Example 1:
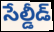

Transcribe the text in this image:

సేల్డీడ్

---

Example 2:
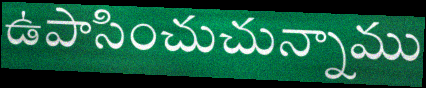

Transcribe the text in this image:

ఉపాసించుచున్నాము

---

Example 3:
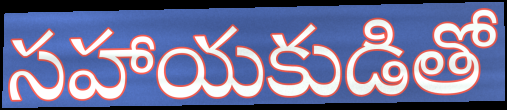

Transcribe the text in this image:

సహాయకుడితో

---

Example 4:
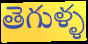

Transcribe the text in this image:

తెగుళ్ళ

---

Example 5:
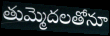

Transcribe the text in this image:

తుమ్మెదలతోనూ